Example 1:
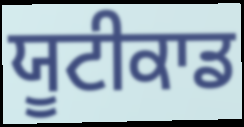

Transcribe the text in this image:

ਯੂਟੀਕਾਡ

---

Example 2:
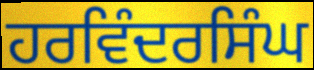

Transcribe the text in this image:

ਹਰਵਿੰਦਰਸਿੰਘ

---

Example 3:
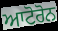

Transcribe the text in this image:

ਆਟੋਰੋਨ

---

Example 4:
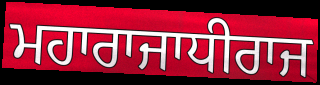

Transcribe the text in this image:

ਮਹਾਰਾਜਾਧੀਰਾਜ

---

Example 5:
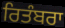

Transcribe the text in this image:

ਰਿਤੰਬਰਾ